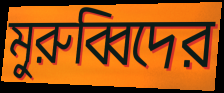
মুরুব্বিদের